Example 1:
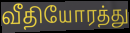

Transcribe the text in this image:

வீதியோரத்து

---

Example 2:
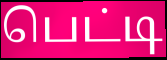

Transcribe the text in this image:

பெட்டி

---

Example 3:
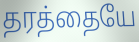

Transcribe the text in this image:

தரத்தையே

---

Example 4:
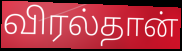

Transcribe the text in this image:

விரல்தான்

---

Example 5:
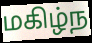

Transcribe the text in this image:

மகிழ்ந